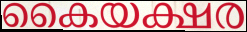
കൈയക്ഷര